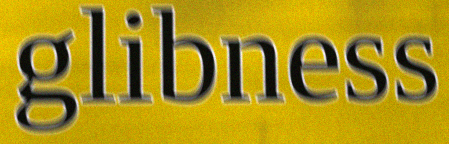
glibness